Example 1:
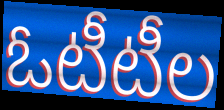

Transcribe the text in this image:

ఓటీటీల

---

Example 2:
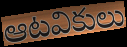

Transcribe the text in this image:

ఆటవికులు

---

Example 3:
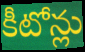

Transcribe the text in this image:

కీటోన్లు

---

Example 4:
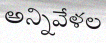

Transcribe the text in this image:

అన్నివేళల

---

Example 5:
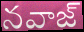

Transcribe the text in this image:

నవాజ్